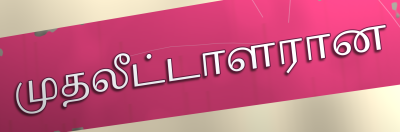
முதலீட்டாளரான